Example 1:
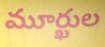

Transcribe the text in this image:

మూర్ఖుల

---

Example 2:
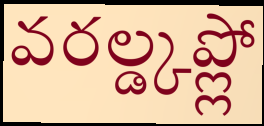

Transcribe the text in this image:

వరల్డ్కప్ల్లో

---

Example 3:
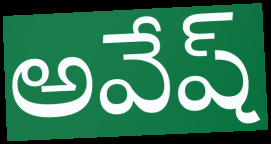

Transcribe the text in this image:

అవేష్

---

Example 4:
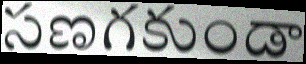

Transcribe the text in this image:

సణగకుండా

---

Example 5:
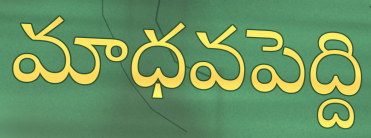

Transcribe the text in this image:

మాధవపెద్ది